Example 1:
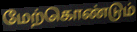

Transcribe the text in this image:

மேற்கொண்டும்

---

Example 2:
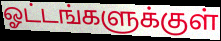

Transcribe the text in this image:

ஓட்டங்களுக்குள்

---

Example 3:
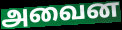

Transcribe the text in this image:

அவைன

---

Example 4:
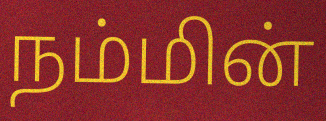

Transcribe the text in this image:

நம்மின்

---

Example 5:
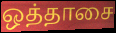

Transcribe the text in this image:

ஒத்தாசை